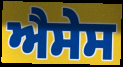
ਐਸੇਸ